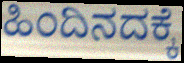
ಹಿಂದಿನದಕ್ಕೆ